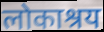
लोकाश्रय